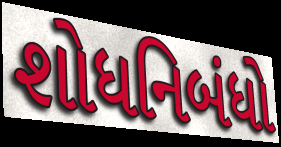
શોધનિબંધો